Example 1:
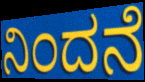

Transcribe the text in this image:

ನಿಂದನೆ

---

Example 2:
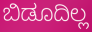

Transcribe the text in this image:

ಬಿಡೂದಿಲ್ಲ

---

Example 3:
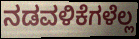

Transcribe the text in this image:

ನಡವಳಿಕೆಗಳೆಲ್ಲ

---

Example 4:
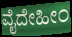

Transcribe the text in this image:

ವೈದೇಹೀಂ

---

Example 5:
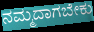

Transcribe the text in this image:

ನಮ್ಮದಾಗಬೇಕು